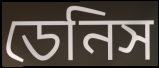
ডেনিস